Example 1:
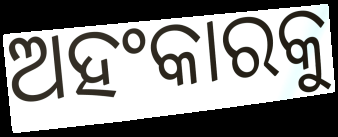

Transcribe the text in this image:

ଅହଂକାରକୁ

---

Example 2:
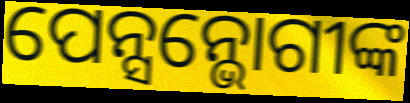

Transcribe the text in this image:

ପେନ୍ସନ୍ଭୋଗୀଙ୍କ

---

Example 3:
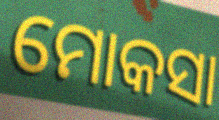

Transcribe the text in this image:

ମୋକସା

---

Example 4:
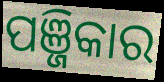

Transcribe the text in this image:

ପଞ୍ଜିକାର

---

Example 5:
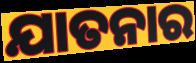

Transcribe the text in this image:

ଯାତନାର